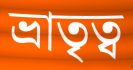
ভ্রাতৃত্ব